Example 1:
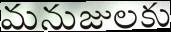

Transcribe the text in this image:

మనుజులకు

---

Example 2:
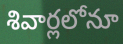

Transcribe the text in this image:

శివార్లలోనూ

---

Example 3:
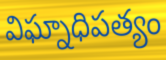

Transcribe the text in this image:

విఘ్నాధిపత్యం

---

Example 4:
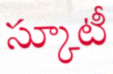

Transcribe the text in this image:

స్కూటీ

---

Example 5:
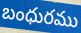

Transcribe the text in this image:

బంధురము